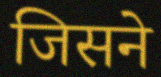
जिसने